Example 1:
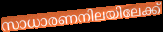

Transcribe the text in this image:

സാധാരണനിലയിലേക്ക്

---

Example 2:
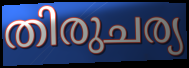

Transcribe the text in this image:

തിരുചര്യ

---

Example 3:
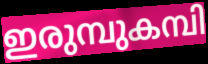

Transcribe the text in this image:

ഇരുമ്പുകമ്പി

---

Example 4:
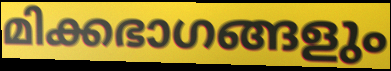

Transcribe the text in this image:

മിക്കഭാഗങ്ങളും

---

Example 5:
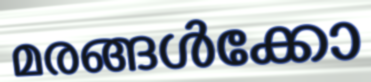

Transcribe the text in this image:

മരങ്ങൾക്കോ